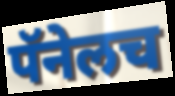
पॅनेलच